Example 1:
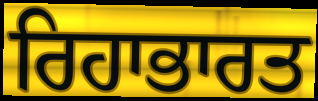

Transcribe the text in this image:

ਰਿਹਾਭਾਰਤ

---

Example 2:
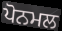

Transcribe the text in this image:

ਪੋਨਮਲ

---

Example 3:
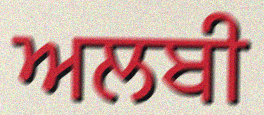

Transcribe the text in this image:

ਅਲਬੀ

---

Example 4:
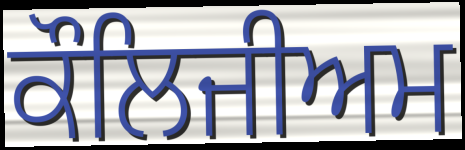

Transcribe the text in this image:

ਕੌਲਿਜੀਅਮ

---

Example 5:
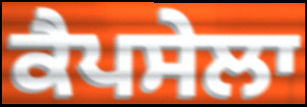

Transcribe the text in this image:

ਕੈਪਸੇਲਾ